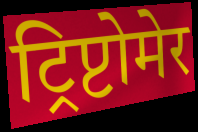
ट्रिप्टोमेर